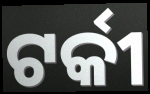
ଟର୍କୀ